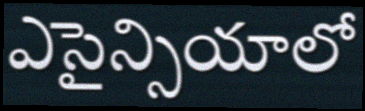
ఎసైన్సియాలో